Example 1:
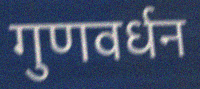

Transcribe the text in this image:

गुणवर्धन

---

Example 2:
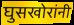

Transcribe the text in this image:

घुसखोरांनी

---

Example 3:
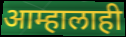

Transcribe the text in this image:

आम्हालाही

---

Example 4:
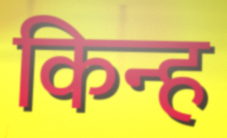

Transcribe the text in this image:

किन्ह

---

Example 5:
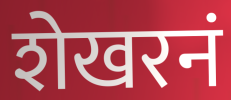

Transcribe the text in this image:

शेखरनं